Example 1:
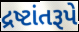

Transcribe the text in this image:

દ્રષ્ટાંતરૂપે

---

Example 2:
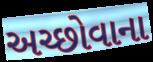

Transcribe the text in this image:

અચ્છોવાના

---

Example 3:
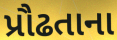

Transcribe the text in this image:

પ્રૌઢતાના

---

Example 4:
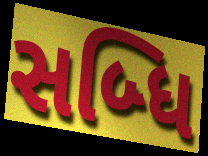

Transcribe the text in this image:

સબ્ધિ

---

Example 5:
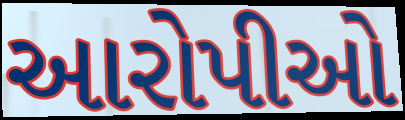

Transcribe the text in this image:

આરોપીઓ